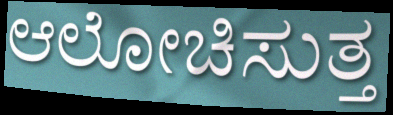
ಆಲೋಚಿಸುತ್ತ